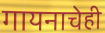
गायनाचेही